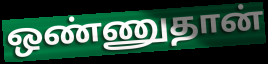
ஒண்ணுதான்